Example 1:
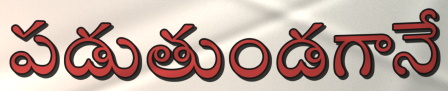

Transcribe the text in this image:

పడుతుండగానే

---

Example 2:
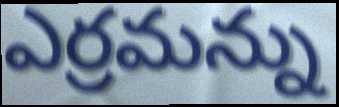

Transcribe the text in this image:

ఎర్రమన్ను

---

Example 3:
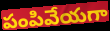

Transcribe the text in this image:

పంపివేయగా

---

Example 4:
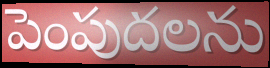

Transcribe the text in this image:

పెంపుదలను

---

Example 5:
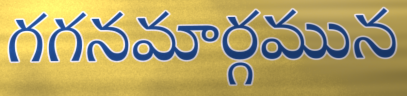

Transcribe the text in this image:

గగనమార్గమున